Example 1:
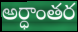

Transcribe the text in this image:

అర్ధాంతర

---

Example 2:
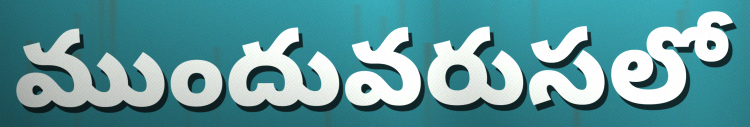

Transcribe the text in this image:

ముందువరుసలో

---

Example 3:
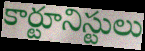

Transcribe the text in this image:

కార్టూనిస్టులు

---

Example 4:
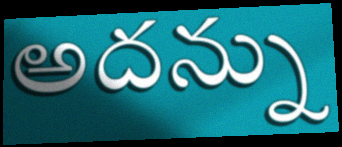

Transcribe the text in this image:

అదన్ను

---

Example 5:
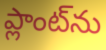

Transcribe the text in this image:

ప్లాంట్‌ను